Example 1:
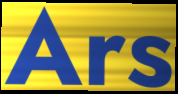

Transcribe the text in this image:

Ars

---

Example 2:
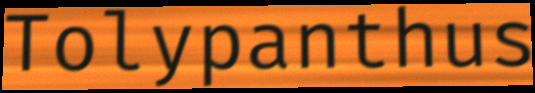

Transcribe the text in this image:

Tolypanthus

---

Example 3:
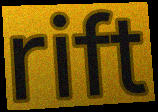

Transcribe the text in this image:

rift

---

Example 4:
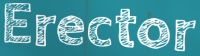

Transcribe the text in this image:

Erector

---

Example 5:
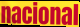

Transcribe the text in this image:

nacional